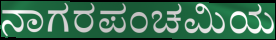
ನಾಗರಪಂಚಮಿಯ